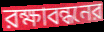
রক্ষাবন্ধনের